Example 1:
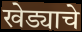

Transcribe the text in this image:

खेड्याचे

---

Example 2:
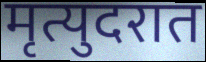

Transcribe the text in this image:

मृत्युदरात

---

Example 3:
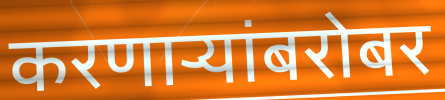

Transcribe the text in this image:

करणार्‍यांबरोबर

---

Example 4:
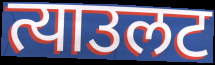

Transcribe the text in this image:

त्याउलट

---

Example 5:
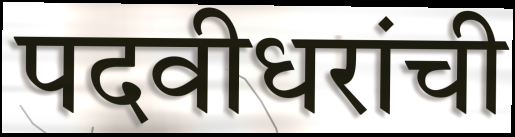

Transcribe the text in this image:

पदवीधरांची